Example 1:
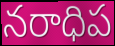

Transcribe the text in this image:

నరాధిప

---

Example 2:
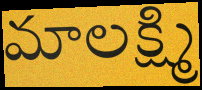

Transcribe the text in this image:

మాలక్ష్మి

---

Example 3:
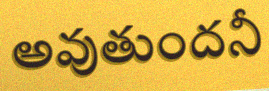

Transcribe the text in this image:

అవుతుందనీ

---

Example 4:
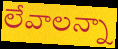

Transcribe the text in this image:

లేవాలన్నా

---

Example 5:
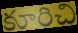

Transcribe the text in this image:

కూరిచి